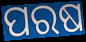
ପରଷ